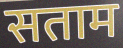
सताम